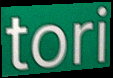
tori